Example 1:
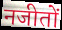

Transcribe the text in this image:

नजीतों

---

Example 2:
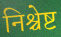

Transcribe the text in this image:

निश्चेष्ट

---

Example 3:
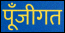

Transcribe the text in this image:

पूँजीगत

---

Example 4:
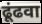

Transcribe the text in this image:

ढूंढवा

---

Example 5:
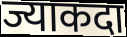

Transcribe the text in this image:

ज्याकदा